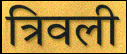
त्रिवली